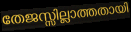
തേജസ്സില്ലാത്തതായി